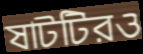
ষাটটিরও